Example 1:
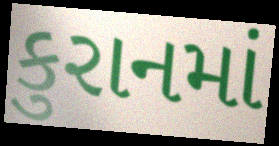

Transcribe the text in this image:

કુરાનમાં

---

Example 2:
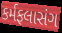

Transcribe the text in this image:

કર્મફલાસંગ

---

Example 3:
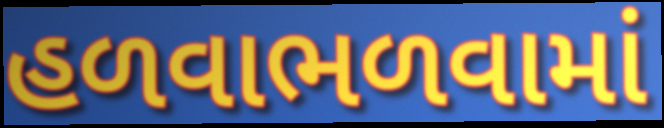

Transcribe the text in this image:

હળવાભળવામાં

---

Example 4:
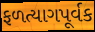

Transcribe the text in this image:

ફળત્યાગપૂર્વક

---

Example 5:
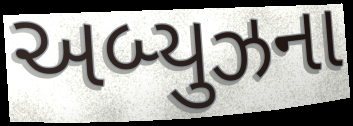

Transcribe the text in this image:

અબ્યુઝના